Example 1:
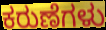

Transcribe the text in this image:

ಕರುಣೆಗಳು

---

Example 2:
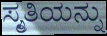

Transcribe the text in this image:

ಸ್ಮೃತಿಯನ್ನು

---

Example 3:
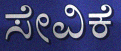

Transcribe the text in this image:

ಸೇವಿಕೆ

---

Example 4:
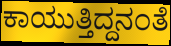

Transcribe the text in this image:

ಕಾಯುತ್ತಿದ್ದನಂತೆ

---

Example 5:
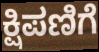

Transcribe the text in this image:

ಕ್ಷಿಪಣಿಗೆ